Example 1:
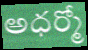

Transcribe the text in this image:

అధర్మో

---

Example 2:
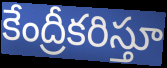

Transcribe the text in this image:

కేంద్రీకరిస్తూ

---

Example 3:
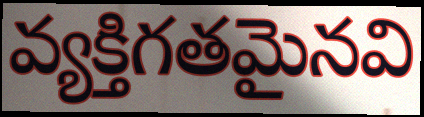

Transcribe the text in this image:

వ్యక్తిగతమైనవి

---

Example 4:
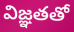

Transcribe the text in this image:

విజ్ఞతతో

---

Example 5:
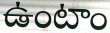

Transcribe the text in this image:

ఉంటాం